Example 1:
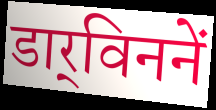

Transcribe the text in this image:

डार्विननें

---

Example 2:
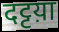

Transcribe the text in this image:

दट्टय़ा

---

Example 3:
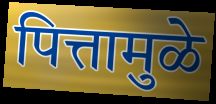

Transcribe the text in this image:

पित्तामुळे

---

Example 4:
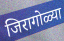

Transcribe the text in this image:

जिरागोळ्या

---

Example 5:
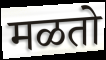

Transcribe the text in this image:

मळतो